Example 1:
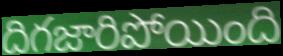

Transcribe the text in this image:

దిగజారిపోయింది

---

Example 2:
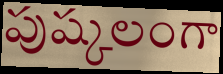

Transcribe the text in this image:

పుష్కలంగా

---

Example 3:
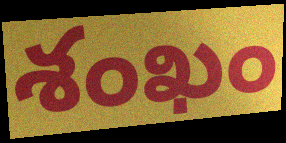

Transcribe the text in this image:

శంఖం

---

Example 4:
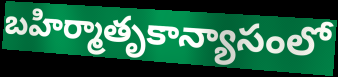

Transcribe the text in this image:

బహిర్మాతృకాన్యాసంలో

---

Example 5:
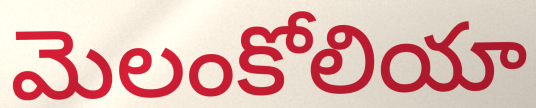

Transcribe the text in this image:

మెలంకోలియా